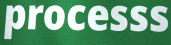
processs